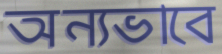
অন্যভাবে